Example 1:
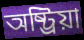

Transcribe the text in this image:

অষ্ট্রিয়া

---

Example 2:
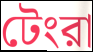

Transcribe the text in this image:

টেংরা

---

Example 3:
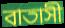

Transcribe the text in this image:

বাতাসী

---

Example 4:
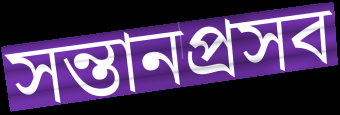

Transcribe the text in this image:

সন্তানপ্রসব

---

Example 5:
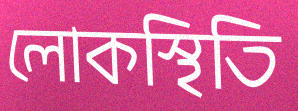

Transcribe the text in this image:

লোকস্থিতি